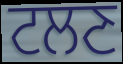
ਟਲਣ